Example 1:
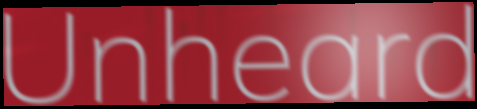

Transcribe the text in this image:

Unheard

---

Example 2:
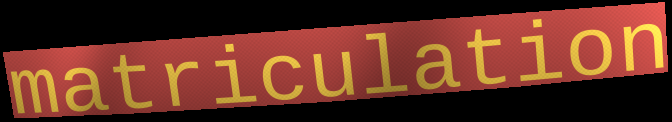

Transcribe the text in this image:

matriculation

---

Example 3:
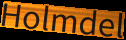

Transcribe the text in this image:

Holmdel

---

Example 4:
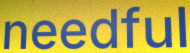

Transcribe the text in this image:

needful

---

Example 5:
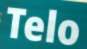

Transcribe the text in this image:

Telo